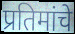
प्रतिमांचे